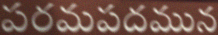
పరమపదమున